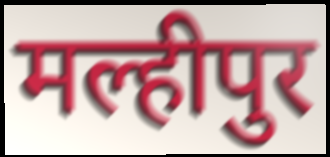
मल्हीपुर